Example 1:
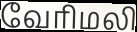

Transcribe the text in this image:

வேரிமலி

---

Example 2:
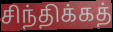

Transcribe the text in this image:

சிந்திக்கத்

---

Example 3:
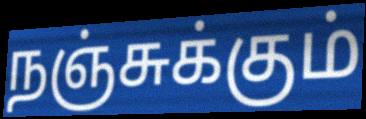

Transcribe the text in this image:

நஞ்சுக்கும்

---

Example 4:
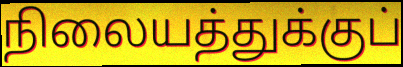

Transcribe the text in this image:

நிலையத்துக்குப்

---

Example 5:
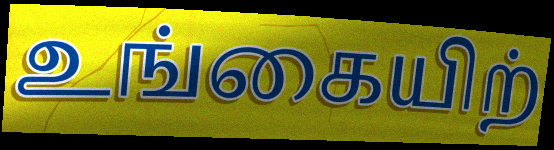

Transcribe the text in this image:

உங்கையிற்